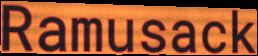
Ramusack